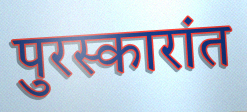
पुरस्कारांत